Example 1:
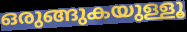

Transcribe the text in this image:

ഒരുങ്ങുകയുള്ളൂ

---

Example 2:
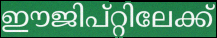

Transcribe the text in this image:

ഈജിപ്റ്റിലേക്ക്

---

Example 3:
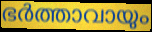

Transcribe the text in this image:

ഭർത്താവായും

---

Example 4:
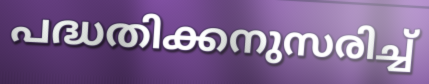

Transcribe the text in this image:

പദ്ധതിക്കനുസരിച്ച്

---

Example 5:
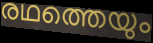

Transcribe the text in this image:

രഥത്തെയും